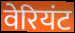
वेरियंट